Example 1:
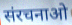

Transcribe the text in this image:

संरचनाओ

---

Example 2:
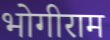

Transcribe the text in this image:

भोगीराम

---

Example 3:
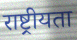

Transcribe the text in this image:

राष्ट्रीयता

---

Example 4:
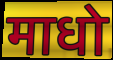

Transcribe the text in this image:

माधो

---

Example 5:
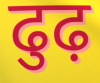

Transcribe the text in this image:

ढुढ़